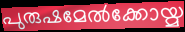
പുരുഷമേൽക്കോയ്മ